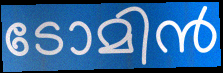
ടോമിൻ